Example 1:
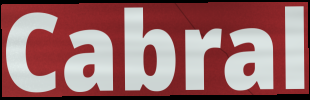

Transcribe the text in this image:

Cabral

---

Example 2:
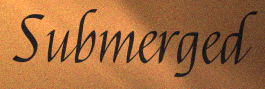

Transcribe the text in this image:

Submerged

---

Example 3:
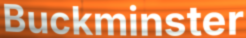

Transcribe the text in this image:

Buckminster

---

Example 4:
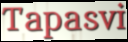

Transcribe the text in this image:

Tapasvi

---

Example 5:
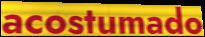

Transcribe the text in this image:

acostumado